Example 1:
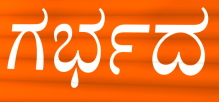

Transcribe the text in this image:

ಗರ್ಭದ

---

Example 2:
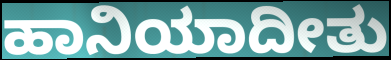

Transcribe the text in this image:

ಹಾನಿಯಾದೀತು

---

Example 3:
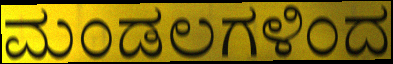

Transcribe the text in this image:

ಮಂಡಲಗಳಿಂದ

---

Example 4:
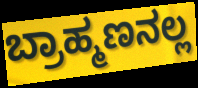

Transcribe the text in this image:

ಬ್ರಾಹ್ಮಣನಲ್ಲ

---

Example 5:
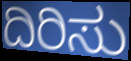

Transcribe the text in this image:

ದಿರಿಸು